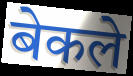
बेकले